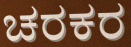
ಚರಕರ